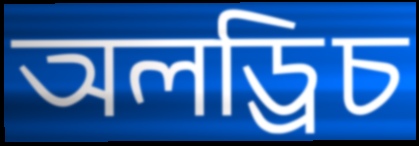
অলড্রিচ